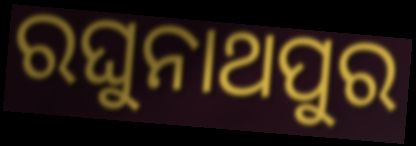
ରଘୁନାଥପୁର